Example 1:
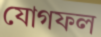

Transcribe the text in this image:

যোগফল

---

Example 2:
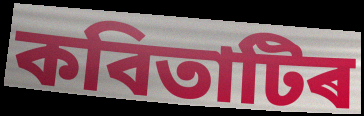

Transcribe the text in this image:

কবিতাটিৰ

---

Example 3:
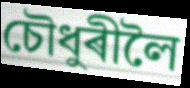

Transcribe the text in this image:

চৌধুৰীলৈ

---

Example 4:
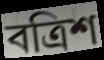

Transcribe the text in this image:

বত্ৰিশ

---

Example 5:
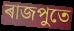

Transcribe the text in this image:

ৰাজপুতে